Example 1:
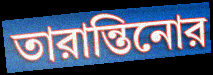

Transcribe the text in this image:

তারান্তিনোর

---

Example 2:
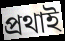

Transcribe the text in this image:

প্রথাই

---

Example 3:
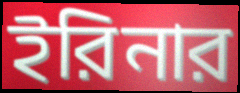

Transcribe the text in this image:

ইরিনার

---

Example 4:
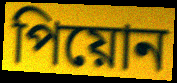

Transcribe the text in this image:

পিয়োন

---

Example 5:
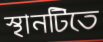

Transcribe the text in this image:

স্থানটিতে